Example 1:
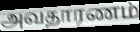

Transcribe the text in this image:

அவதாரணம்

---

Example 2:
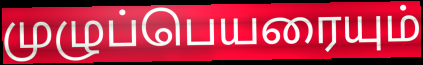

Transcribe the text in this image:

முழுப்பெயரையும்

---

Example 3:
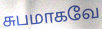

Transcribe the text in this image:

சுபமாகவே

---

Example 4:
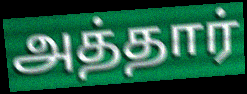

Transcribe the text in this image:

அத்தார்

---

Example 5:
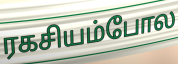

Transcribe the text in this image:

ரகசியம்போல